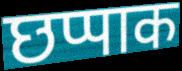
छप्पाक